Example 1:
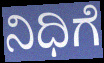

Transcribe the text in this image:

ನಿಧಿಗೆ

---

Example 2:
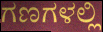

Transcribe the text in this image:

ಗಣಗಳಲ್ಲಿ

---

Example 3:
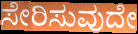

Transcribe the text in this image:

ಸೇರಿಸುವುದೇ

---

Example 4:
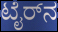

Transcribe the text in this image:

ಟೈರ್‌ನ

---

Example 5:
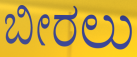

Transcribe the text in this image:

ಬೀರಲು